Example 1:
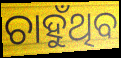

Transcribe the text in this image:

ଚାହୁଁଥିବ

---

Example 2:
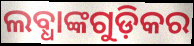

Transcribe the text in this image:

ଲବ୍ଧାଙ୍କଗୁଡ଼ିକର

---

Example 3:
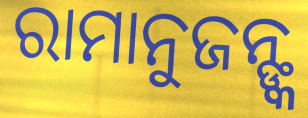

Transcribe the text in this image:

ରାମାନୁଜନ୍ଙ୍କ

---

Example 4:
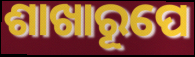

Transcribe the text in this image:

ଶାଖାରୂପେ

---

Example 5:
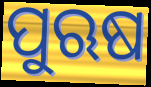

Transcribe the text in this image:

ପୁଋଷ